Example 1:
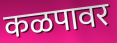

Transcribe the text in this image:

कळपावर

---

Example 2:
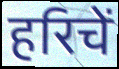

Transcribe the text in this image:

हरिचें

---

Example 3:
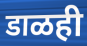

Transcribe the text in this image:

डाळही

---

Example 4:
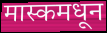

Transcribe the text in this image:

मास्कमधून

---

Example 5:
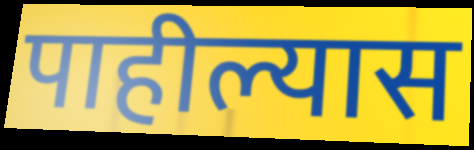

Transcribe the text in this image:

पाहील्यास